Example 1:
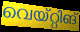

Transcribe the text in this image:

വെയ്റ്റിങ്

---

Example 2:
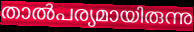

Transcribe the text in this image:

താൽപര്യമായിരുന്നു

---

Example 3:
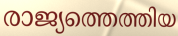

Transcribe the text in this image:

രാജ്യത്തെത്തിയ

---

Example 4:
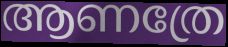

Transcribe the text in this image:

ആണത്രേ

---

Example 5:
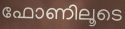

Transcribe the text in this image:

ഫോണിലൂടെ